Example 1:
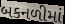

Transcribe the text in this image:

બકનળીમાં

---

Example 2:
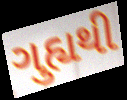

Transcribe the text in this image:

ગુહ્યથી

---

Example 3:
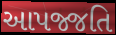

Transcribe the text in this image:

આપજ્જતિ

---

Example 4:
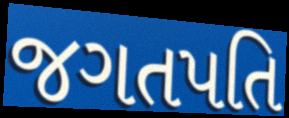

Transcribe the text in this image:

જગતપતિ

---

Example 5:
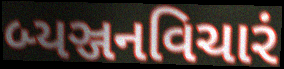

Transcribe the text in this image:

બ્યઞ્જનવિચારં